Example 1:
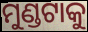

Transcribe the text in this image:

ମୁଣ୍ଡଟାକୁ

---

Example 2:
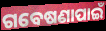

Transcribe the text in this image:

ଗବେଷଣାପାଇଁ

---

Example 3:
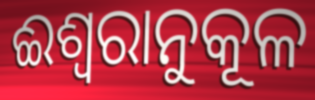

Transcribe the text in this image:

ଈଶ୍ଵରାନୁକୂଳ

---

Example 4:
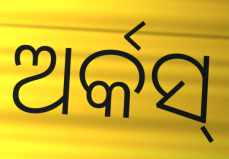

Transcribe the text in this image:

ଅର୍କସ୍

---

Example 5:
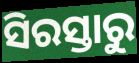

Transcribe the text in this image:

ସିରସ୍ତାରୁ